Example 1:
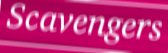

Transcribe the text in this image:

Scavengers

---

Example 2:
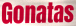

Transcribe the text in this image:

Gonatas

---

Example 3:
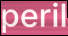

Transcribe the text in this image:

peril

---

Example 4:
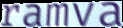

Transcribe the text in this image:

ramva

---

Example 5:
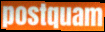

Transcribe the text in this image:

postquam